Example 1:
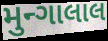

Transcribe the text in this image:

મુન્ગાલાલ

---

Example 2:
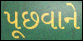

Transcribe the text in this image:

પૂછવાને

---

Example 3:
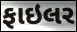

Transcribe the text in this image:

ફાઇલર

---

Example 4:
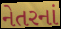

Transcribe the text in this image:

નેતરનાં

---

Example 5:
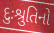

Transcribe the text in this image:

દુઃશ્રુતિનો